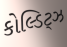
કોલ્ડિટ્ઝ